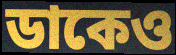
ডাকেও